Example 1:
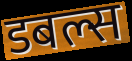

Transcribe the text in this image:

डबल्स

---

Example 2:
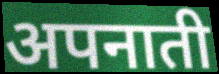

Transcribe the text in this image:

अपनाती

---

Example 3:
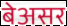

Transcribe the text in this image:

बेअसर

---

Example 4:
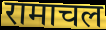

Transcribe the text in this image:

रामाचल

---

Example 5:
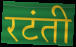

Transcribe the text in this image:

रटंती